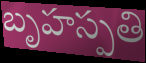
బృహస్పతి